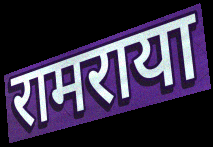
रामराया